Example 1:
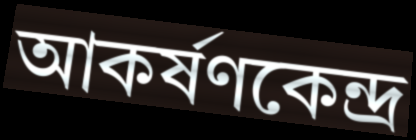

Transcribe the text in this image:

আকর্ষণকেন্দ্র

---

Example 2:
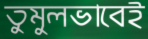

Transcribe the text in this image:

তুমুলভাবেই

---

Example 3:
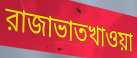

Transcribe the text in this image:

রাজাভাতখাওয়া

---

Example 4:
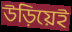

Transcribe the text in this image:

উড়িয়েই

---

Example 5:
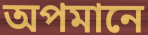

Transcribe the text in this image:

অপমানে